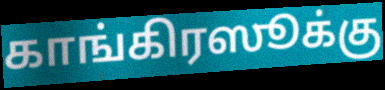
காங்கிரஸூக்கு